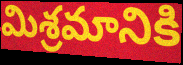
మిశ్రమానికి